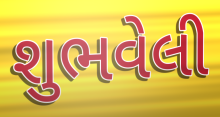
શુભવેલી